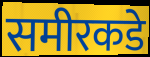
समीरकडे